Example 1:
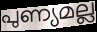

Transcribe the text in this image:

പുണ്യമല്ല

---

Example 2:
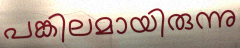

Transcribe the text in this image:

പങ്കിലമായിരുന്നു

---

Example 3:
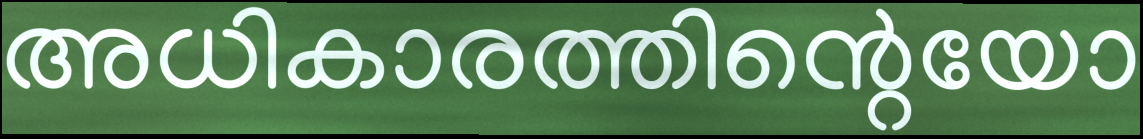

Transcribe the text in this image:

അധികാരത്തിന്റെയോ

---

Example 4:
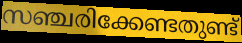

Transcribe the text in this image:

സഞ്ചരിക്കേണ്ടതുണ്ട്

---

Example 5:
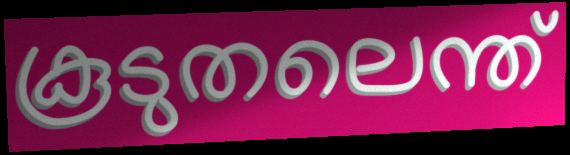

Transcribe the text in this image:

കൂടുതലെന്ത്